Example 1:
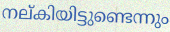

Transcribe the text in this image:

നല്കിയിട്ടുണ്ടെന്നും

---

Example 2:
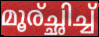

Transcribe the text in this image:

മൂര്ച്ഛിച്ച്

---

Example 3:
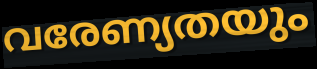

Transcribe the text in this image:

വരേണ്യതയും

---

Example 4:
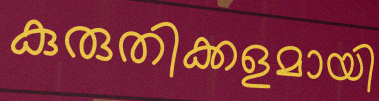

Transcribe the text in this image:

കുരുതിക്കളമായി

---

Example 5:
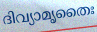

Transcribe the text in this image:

ദിവ്യാമൃതൈഃ